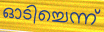
ഓടിച്ചെന്ന്